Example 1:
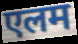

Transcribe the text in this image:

एलम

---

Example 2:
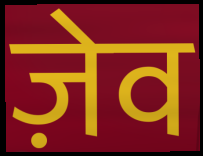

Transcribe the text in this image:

ज़ेव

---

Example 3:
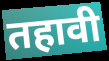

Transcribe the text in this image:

तहावी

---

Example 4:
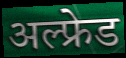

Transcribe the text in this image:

अल्फ्रेड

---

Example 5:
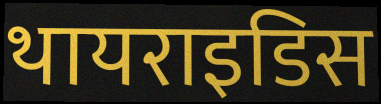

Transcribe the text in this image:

थायराइडिस